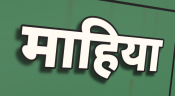
माहिया